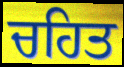
ਚਹਿਤ